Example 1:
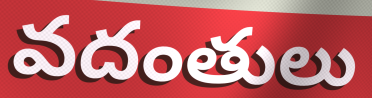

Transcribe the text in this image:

వదంతులు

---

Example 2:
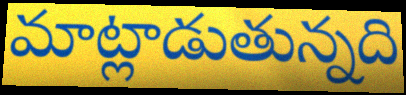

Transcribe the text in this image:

మాట్లాడుతున్నది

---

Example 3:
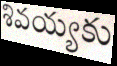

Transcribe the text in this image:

శివయ్యకు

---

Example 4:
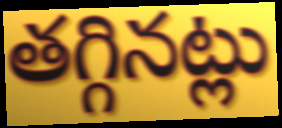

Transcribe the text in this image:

తగ్గినట్లు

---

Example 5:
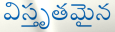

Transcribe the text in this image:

విస్తృతమైన